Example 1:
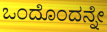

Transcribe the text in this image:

ಒಂದೊಂದನ್ನೇ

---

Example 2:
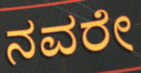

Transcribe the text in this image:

ನವರೇ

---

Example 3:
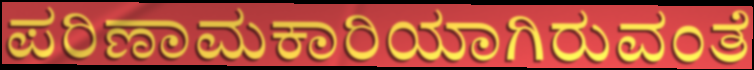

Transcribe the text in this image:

ಪರಿಣಾಮಕಾರಿಯಾಗಿರುವಂತೆ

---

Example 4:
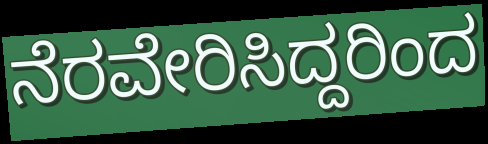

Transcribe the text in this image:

ನೆರವೇರಿಸಿದ್ದರಿಂದ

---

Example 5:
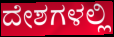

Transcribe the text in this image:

ದೇಶಗಳಲ್ಲಿ